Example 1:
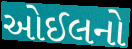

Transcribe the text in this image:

ઓઈલનો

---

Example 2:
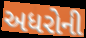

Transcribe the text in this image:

અધરોની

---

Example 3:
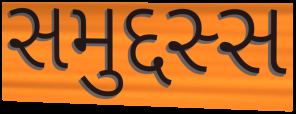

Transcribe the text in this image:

સમુદ્દસ્સ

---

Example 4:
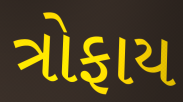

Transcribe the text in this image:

ત્રોફાય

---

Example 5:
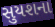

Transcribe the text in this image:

સુયશના